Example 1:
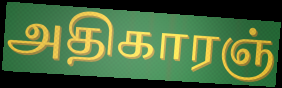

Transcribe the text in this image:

அதிகாரஞ்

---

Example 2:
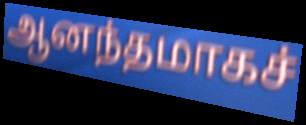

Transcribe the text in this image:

ஆனந்தமாகச்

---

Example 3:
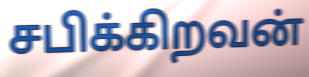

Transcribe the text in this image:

சபிக்கிறவன்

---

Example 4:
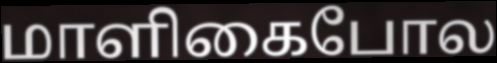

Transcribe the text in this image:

மாளிகைபோல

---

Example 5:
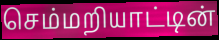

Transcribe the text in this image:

செம்மறியாட்டின்